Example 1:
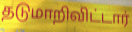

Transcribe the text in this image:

தடுமாறிவிட்டார்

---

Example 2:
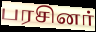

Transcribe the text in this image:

பரசினர்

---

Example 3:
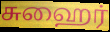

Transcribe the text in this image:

சுஹைர்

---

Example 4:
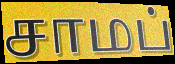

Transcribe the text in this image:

சாமப்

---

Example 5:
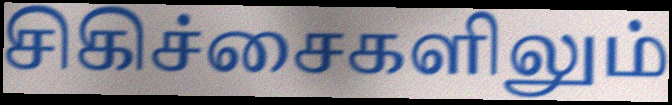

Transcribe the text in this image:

சிகிச்சைகளிலும்